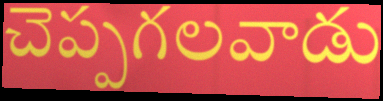
చెప్పగలవాడు